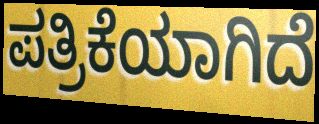
ಪತ್ರಿಕೆಯಾಗಿದೆ